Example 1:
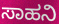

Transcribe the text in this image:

ಸಾಹನಿ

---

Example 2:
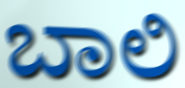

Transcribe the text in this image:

ಬಾಲಿ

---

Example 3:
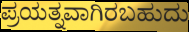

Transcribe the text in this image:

ಪ್ರಯತ್ನವಾಗಿರಬಹುದು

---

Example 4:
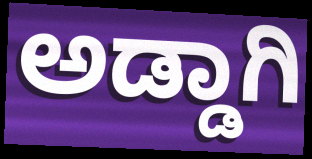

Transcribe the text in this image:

ಅಡ್ಡಾಗಿ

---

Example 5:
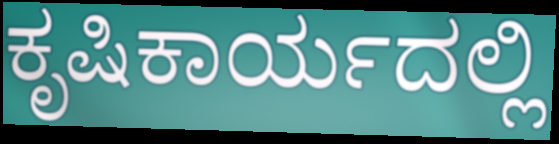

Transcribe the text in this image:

ಕೃಷಿಕಾರ್ಯದಲ್ಲಿ